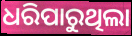
ଧରିପାରୁଥିଲା